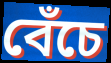
বেঁচে